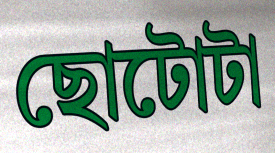
ছোটোটা